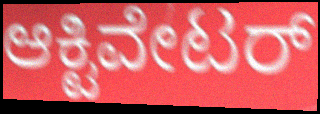
ಆಕ್ಟಿವೇಟರ್